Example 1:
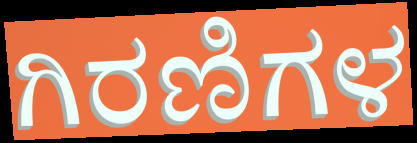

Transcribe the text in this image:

ಗಿರಣಿಗಳ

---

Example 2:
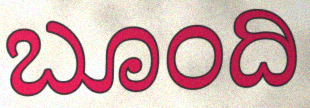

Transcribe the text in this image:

ಬೂಂದಿ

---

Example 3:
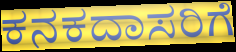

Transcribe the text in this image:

ಕನಕದಾಸರಿಗೆ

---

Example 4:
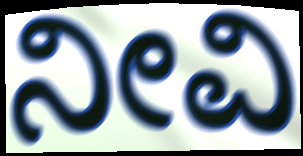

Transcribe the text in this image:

ನೀವಿ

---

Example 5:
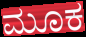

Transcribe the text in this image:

ಮೂಕ